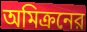
অমিক্রনের